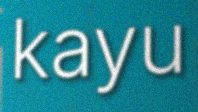
kayu